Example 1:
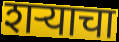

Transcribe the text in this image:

शर्‍याचा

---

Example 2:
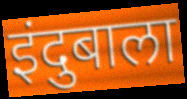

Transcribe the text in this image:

इंदुबाला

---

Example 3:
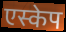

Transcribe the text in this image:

एस्केप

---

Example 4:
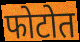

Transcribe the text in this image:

फोटोत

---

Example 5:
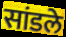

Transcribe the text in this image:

सांडले